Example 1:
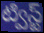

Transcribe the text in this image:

ట్విస్ట్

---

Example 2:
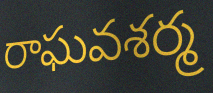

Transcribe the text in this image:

రాఘవశర్మ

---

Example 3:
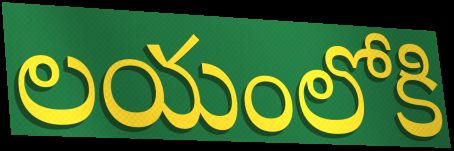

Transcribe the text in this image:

లయంలోకి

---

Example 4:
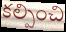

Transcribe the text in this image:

కల్పించి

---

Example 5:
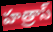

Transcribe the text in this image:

హత్రాస్